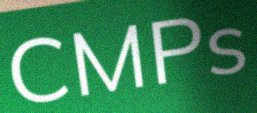
CMPs